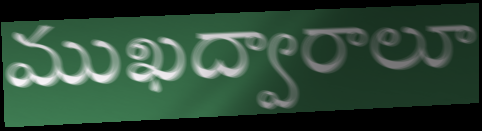
ముఖద్వారాలూ